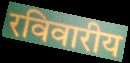
रविवारीय